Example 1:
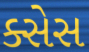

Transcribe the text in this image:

ક્સેસ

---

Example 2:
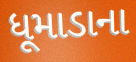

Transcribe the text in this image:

ધૂમાડાના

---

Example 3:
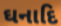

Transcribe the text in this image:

ઘનાદિ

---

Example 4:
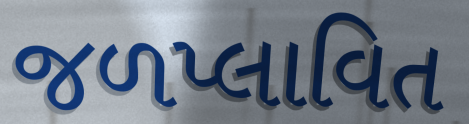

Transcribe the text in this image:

જળપ્લાવિત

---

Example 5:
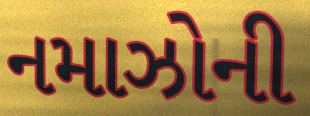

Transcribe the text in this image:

નમાઝોની